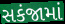
સકંજામાં